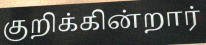
குறிக்கின்றார்